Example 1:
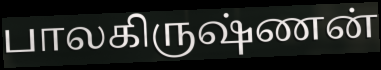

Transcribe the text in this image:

பாலகிருஷ்ணன்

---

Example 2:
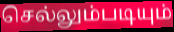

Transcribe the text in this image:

செல்லும்படியும்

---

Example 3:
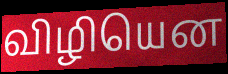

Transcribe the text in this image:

விழியென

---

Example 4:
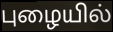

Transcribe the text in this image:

புழையில்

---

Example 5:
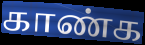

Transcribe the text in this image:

காண்க